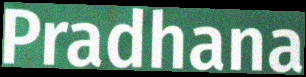
Pradhana